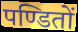
पण्डितों